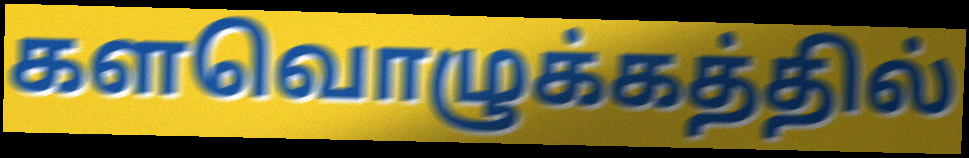
களவொழுக்கத்தில்